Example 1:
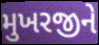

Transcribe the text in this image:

મુખરજીને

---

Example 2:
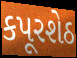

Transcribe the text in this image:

કપૂરશેઠ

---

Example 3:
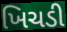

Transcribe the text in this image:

ખિચડી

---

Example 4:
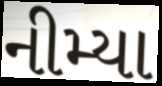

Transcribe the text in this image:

નીમ્યા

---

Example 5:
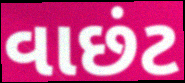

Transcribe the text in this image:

વાછંટ